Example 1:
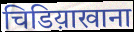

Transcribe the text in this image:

चिडिय़ाखाना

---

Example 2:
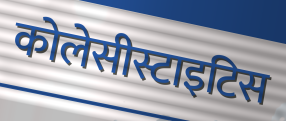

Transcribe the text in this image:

कोलेसीस्टाइटिस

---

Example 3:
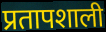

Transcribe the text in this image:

प्रतापशाली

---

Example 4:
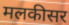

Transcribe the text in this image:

मलकीसर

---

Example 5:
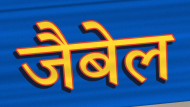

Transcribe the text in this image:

जैबेल